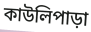
কাউলিপাড়া